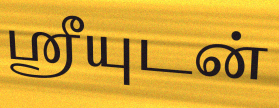
ஸ்ரீயுடன்